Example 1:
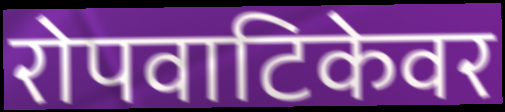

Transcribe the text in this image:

रोपवाटिकेवर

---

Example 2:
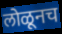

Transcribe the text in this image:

लोळूनच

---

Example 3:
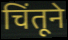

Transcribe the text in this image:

चिंतूने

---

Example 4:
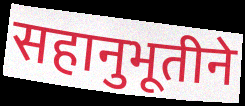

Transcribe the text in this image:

सहानुभूतीने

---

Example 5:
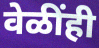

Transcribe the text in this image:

वेळींही